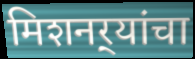
मिशनर्यांचा